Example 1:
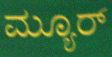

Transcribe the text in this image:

ಮ್ಯೂರ್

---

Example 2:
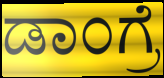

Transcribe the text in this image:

ಡಾಂಗ್ರೆ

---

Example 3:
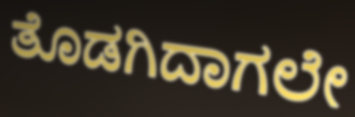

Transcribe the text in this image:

ತೊಡಗಿದಾಗಲೇ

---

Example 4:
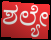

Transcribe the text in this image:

ಶಲ್ಯೇ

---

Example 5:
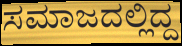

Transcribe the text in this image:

ಸಮಾಜದಲ್ಲಿದ್ದ